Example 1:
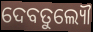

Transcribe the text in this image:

ଦେବତୁଲ୍ୟୌ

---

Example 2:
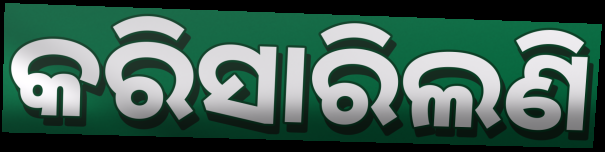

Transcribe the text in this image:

କରିସାରିଲଣି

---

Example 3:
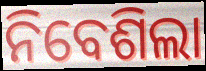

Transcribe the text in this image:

ନିବେଶିଲା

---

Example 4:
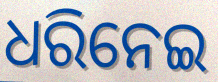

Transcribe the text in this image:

ଧରିନେଇ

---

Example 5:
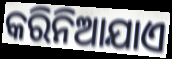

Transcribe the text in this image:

କରିନିଆଯାଏ